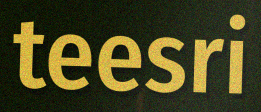
teesri